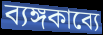
ব্যঙ্গকাব্যে